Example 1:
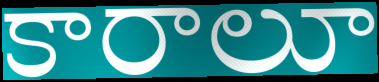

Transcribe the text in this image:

కారాలూ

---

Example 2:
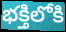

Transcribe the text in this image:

భక్తిలోకి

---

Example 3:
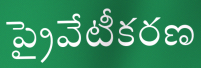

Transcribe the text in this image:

ప్రైవేటీకరణ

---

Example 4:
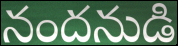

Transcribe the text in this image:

నందనుడి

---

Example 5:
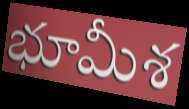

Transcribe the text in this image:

భూమీశ